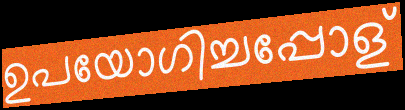
ഉപയോഗിച്ചപ്പോള്